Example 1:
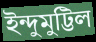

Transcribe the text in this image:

ইন্দুমুট্টিল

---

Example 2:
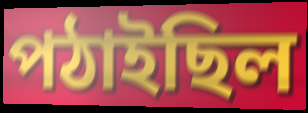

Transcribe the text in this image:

পঠাইছিল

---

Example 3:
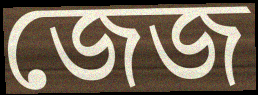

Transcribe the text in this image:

জেজ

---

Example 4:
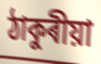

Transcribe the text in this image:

ঠাকুৰীয়া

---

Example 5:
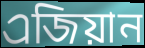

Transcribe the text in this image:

এজিয়ান